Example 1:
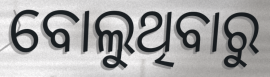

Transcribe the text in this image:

ବୋଲୁଥିବାରୁ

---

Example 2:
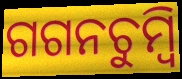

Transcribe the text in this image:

ଗଗନଚୁମ୍ବି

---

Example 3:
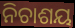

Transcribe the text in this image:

ନିଚାଶୟ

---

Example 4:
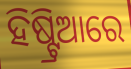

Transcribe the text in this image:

ହିଷ୍ଟ୍ରିଆରେ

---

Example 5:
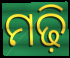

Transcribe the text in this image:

ମଢ଼ି